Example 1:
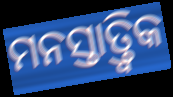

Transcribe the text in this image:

ମନସ୍ତାତ୍ତ୍ୱିକ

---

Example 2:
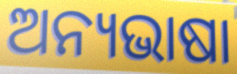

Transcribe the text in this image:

ଅନ୍ୟଭାଷା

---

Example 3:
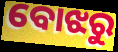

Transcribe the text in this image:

ବୋଝରୁ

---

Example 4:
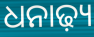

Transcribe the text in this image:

ଧନାଢ଼୍ୟ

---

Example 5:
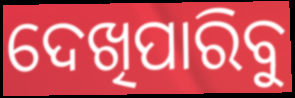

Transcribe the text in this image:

ଦେଖିପାରିବୁ